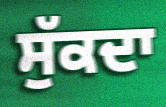
ਸੁੱਕਦਾ